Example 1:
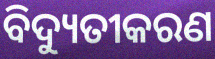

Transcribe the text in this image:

ବିଦ୍ୟୁତୀକରଣ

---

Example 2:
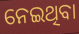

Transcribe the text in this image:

ନେଇଥିବା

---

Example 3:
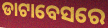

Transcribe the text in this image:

ଡାଟାବେସରେ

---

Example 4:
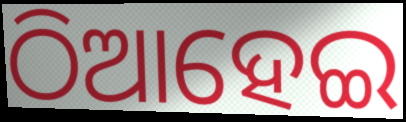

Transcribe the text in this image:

ଠିଆହେଇ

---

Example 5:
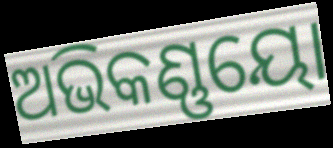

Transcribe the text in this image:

ଅଭିକଣ୍ଣୟୋ